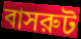
বাসরুট